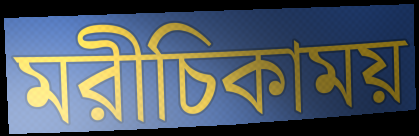
মরীচিকাময়